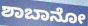
ಶಾಬಾನೋ